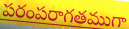
పరంపరాగతముగా